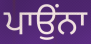
ਪਾਉਂਨਾ